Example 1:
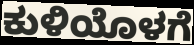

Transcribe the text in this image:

ಕುಳಿಯೊಳಗೆ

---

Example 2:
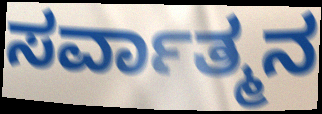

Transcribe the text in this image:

ಸರ್ವಾತ್ಮನ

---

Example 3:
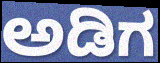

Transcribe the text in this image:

ಅಡಿಗ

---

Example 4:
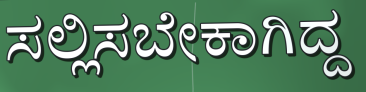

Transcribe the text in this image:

ಸಲ್ಲಿಸಬೇಕಾಗಿದ್ದ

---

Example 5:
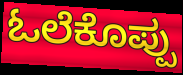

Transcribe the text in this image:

ಓಲೆಕೊಪ್ಪು